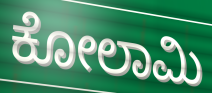
ಕೋಲಾಮಿ